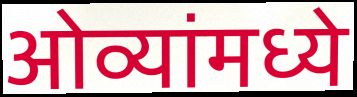
ओव्यांमध्ये